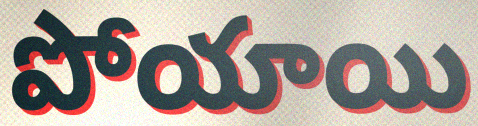
పోయాయి